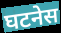
घटनेस